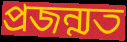
প্ৰজন্মত